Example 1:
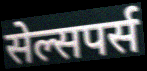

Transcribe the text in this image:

सेल्सपर्स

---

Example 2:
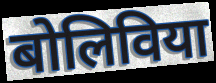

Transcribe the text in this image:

बोलिविया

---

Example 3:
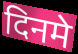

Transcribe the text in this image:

दिनमे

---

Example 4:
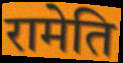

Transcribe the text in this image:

रामेति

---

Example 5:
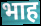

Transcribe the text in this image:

भाह